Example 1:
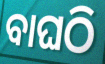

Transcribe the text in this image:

ବାଘଠି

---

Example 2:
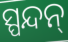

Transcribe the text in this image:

ସ୍ପନ୍ଦନ୍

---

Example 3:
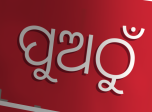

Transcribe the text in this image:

ପୁଅଠୁଁ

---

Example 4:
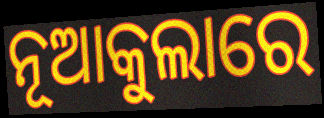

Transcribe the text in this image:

ନୂଆକୁଲାରେ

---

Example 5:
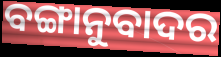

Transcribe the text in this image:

ବଙ୍ଗାନୁବାଦର